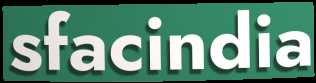
sfacindia